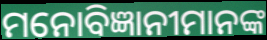
ମନୋବିଜ୍ଞାନୀମାନଙ୍କ